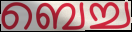
ബെച്ച